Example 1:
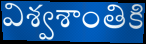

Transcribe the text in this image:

విశ్వశాంతికి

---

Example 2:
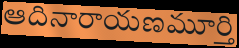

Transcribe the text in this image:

ఆదినారాయణమూర్తి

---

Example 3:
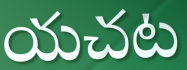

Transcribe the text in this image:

యచట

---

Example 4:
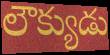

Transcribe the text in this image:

లౌక్యుడు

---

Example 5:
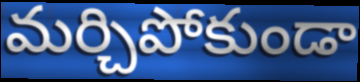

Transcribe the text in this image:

మర్చిపోకుండా